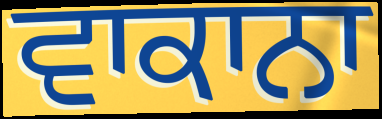
ਵਾਕਾਨਾ